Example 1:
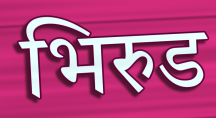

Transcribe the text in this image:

भिरुड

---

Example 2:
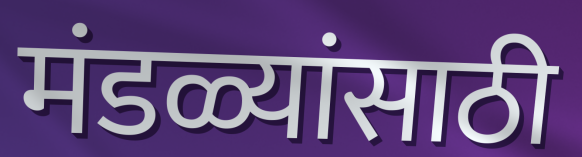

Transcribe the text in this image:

मंडळ्यांसाठी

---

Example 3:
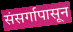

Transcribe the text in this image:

संसर्गापासून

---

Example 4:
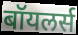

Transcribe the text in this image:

बॉयलर्स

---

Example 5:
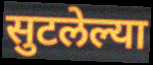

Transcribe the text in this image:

सुटलेल्या